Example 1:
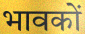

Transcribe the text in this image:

भावकों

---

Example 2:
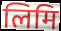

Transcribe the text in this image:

लिमि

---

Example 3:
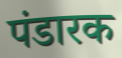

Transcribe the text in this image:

पंडारक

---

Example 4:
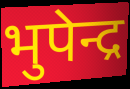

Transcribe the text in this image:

भुपेन्द्र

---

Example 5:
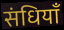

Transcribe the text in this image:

संधियाँ